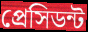
প্রেসিডন্ট